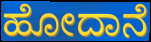
ಹೋದಾನೆ